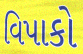
વિપાકો